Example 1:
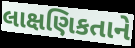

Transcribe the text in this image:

લાક્ષણિકતાને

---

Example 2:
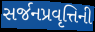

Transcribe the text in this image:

સર્જનપ્રવૃત્તિની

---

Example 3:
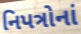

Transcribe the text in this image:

નિપત્રોનાં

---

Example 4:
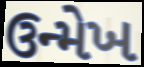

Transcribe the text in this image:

ઉન્મેખ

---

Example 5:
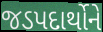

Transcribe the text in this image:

જડપદાર્થોને